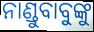
ନାଣ୍ଡୁବାବୁଙ୍କୁ